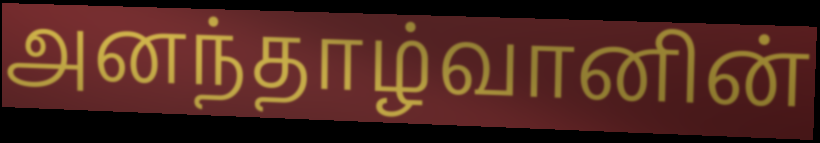
அனந்தாழ்வானின்